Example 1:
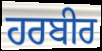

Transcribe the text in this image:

ਹਰਬੀਰ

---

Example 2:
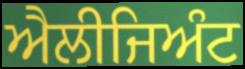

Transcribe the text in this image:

ਐਲੀਜਿਅੰਟ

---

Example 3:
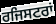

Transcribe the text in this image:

ਰਜਿਸਟਰਾਂ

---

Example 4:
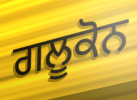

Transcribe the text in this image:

ਗਲੂਕੋਨ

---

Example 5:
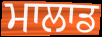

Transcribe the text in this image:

ਮਾਲਾਡ